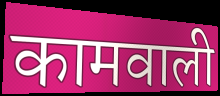
कामवाली